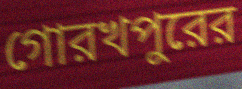
গোরখপুরের